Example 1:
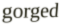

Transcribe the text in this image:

gorged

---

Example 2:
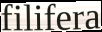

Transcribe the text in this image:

filifera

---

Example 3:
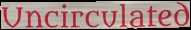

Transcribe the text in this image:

Uncirculated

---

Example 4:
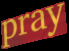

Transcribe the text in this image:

pray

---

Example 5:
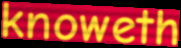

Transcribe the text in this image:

knoweth